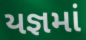
યજ્ઞમાં